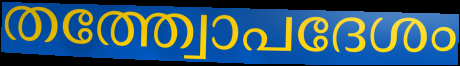
തത്ത്വോപദേശം